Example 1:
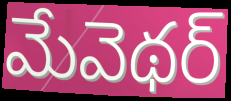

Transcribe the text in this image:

మేవెథర్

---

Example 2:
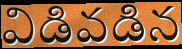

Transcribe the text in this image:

విడివడిన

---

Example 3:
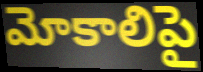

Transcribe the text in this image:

మోకాలిపై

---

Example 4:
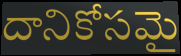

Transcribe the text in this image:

దానికోసమై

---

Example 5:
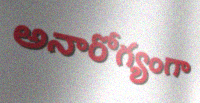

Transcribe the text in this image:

అనారోగ్యంగా